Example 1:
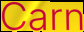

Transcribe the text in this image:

Carn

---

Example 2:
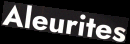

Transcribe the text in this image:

Aleurites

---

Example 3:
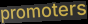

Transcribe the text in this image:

promoters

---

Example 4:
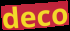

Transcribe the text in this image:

deco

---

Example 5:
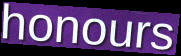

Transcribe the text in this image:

honours